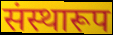
संस्थारूप